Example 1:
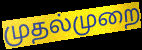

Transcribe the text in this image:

முதல்முறை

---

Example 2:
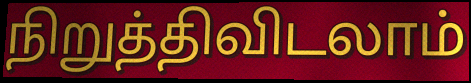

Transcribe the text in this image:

நிறுத்திவிடலாம்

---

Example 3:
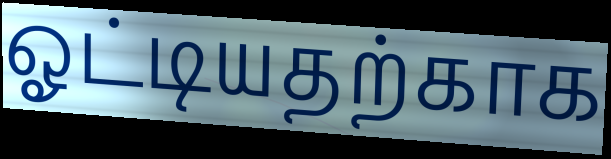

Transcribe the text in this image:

ஓட்டியதற்காக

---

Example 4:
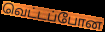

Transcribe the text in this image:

வெட்டப்போன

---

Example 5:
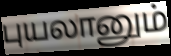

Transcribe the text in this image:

புயலானும்